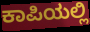
ಕಾಪಿಯಲ್ಲಿ